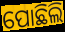
ପୋଛିଲି